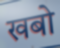
खबो